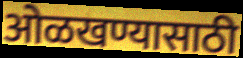
ओळखण्यासाठी